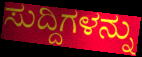
ಸುದ್ದಿಗಳನ್ನು